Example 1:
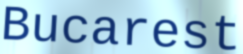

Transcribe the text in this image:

Bucarest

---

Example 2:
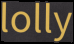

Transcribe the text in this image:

lolly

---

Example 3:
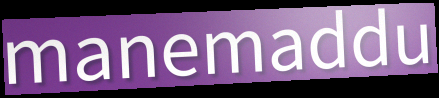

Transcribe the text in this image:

manemaddu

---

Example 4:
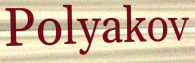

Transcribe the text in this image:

Polyakov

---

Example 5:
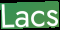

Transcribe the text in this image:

Lacs